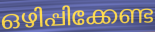
ഒഴിപ്പിക്കേണ്ട